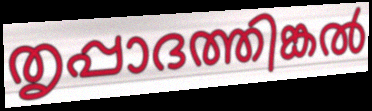
തൃപ്പാദത്തിങ്കൽ